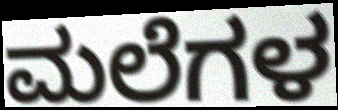
ಮಲೆಗಳ